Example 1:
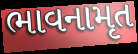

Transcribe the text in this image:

ભાવનામૃત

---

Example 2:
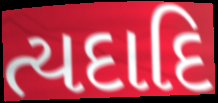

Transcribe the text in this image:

ત્યદાદિ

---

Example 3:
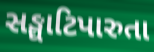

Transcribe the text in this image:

સઙ્ઘાટિપારુતા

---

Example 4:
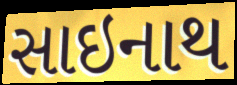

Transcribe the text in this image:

સાઇનાથ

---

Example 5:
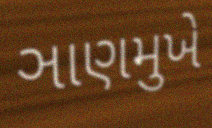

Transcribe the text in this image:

ઞાણમુખે